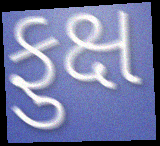
ફુક્ષ